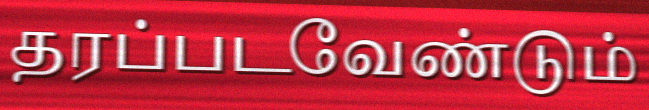
தரப்படவேண்டும்